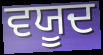
ਵਯੂਦ